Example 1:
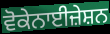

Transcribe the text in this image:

ਵੋਕੇਨਾਈਜ਼ੇਸ਼ਨ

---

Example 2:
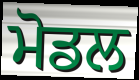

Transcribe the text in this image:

ਮੋਡਲ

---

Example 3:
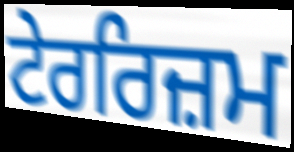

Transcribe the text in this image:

ਟੇਰਰਿਜ਼ਮ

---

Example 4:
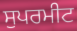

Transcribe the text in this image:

ਸੁਪਰਮੀਟ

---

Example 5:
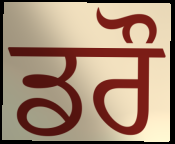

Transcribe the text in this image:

ਡਰੌ